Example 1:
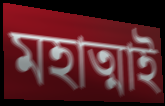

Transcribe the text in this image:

মহাত্মাই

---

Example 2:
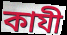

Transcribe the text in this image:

কাযী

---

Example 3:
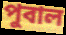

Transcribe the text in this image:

পুবাল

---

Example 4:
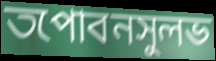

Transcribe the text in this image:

তপোবনসুলভ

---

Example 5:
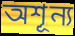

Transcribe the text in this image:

অশূন্য